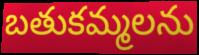
బతుకమ్మలను